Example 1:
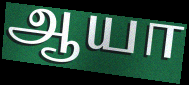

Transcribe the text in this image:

ஆயா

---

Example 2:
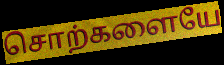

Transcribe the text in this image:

சொற்களையே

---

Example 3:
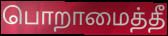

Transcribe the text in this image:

பொறாமைத்தீ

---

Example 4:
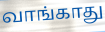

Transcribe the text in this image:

வாங்காது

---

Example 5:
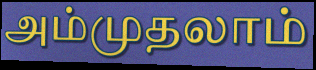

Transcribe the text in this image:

அம்முதலாம்